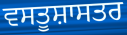
ਵਸਤੂਸ਼ਾਸਤਰ